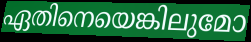
ഏതിനെയെങ്കിലുമോ